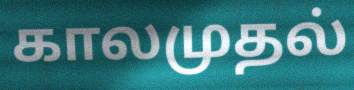
காலமுதல்